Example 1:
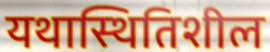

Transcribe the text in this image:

यथास्थितिशील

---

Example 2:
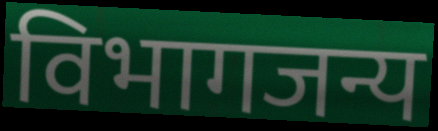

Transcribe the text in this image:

विभागजन्य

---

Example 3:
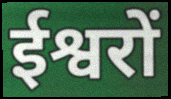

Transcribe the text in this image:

ईश्वरों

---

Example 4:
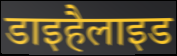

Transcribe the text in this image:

डाइहैलाइड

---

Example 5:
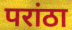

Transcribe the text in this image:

परांठा